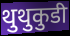
थुथुकुडी